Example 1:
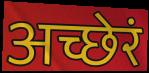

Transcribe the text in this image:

अच्छेरं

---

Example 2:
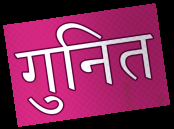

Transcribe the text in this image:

गुनित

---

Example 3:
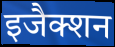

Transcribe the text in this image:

इजैक्शन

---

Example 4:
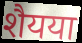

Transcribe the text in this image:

शैयया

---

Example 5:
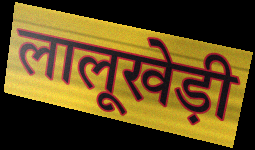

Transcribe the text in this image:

लालूखेड़ी